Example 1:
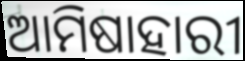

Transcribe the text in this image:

ଆମିଷାହାରୀ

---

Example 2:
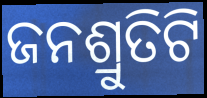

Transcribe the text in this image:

ଜନଶ୍ରୁତିଟି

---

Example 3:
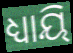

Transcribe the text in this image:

ଧ୍ୟାୟି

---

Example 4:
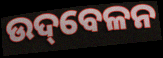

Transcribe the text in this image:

ଉଦ୍‌ବେଳନ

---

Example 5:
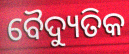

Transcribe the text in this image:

ବୈଦ୍ୟୁତିକ